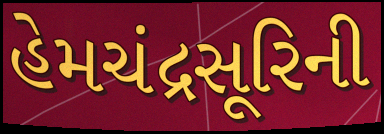
હેમચંદ્રસૂરિની